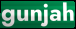
gunjah